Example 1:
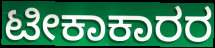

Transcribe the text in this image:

ಟೀಕಾಕಾರರ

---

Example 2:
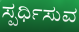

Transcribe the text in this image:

ಸ್ಪರ್ಧಿಸುವ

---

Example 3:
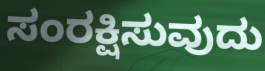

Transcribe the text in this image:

ಸಂರಕ್ಷಿಸುವುದು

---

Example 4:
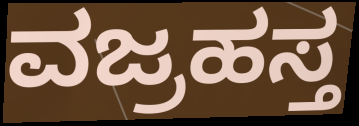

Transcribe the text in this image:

ವಜ್ರಹಸ್ತ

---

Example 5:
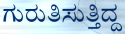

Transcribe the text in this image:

ಗುರುತಿಸುತ್ತಿದ್ದ